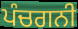
ਪੰਚਗਨੀ